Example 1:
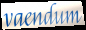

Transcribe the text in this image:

vaendum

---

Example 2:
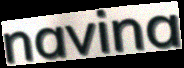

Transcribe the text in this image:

navina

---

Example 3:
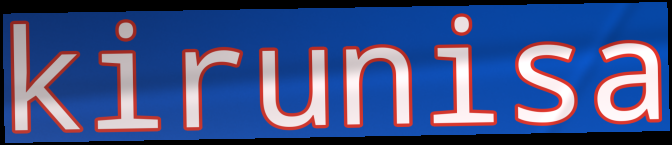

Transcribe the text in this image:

kirunisa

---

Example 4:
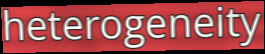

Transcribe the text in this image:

heterogeneity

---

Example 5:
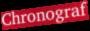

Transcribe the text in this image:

Chronograf